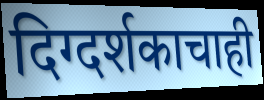
दिग्दर्शकाचाही